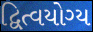
દ્વિત્વયોગ્ય